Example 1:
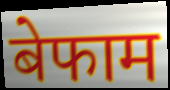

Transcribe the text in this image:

बेफाम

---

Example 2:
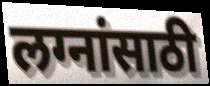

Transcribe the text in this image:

लग्नांसाठी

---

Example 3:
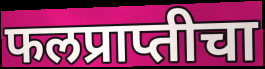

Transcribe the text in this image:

फलप्राप्तीचा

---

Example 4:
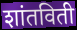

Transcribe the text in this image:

शांतविती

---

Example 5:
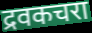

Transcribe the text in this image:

द्रवकचरा